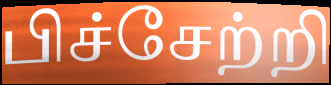
பிச்சேற்றி